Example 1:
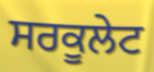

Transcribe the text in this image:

ਸਰਕੂਲੇਟ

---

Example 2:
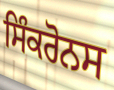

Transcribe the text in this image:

ਸਿੰਕਰੋਨਸ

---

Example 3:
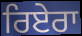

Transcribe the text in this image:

ਰਿਏਰਾ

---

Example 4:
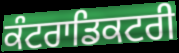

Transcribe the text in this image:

ਕੰਟਰਾਡਿਕਟਰੀ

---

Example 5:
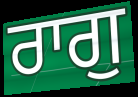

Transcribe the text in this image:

ਰਾਗੁ